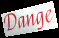
Dange